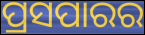
ପ୍ରସପାରର